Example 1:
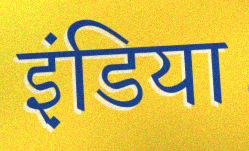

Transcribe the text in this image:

इ़ंडिया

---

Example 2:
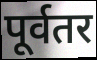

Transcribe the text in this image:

पूर्वतर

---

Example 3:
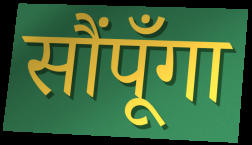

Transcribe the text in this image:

सौंपूँगा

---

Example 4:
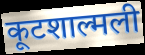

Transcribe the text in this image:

कूटशाल्मली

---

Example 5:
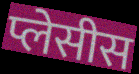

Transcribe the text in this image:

प्लेसीस